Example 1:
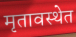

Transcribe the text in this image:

मृतावस्थेत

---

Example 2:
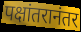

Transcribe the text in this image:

पक्षांतरानंतर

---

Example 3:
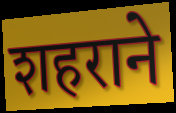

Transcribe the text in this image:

शहराने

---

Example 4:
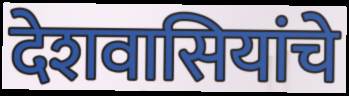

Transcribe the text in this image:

देशवासियांचे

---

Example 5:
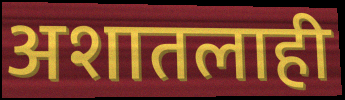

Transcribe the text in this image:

अशातलाही